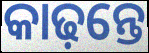
କାଢ଼ନ୍ତେ